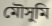
মৌসুমি